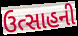
ઉત્સાહની